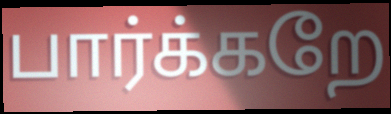
பார்க்கறே